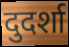
दुदर्शा